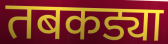
तबकड्या